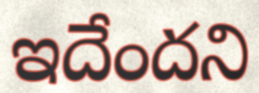
ఇదేందని